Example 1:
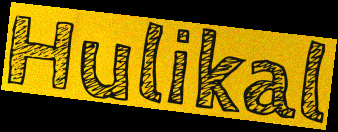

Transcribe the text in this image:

Hulikal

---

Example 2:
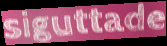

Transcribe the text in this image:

siguttade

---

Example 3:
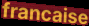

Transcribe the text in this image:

francaise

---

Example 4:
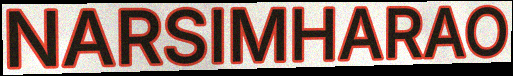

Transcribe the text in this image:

NARSIMHARAO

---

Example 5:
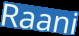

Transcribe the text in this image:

Raani